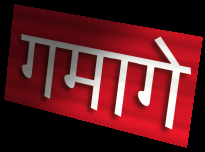
गमागे